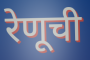
रेणूची